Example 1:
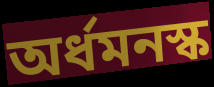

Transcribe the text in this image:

অর্ধমনস্ক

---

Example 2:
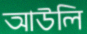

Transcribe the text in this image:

আউলি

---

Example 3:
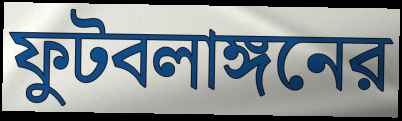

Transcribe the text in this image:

ফুটবলাঙ্গনের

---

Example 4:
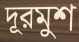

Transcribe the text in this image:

দূরমুশ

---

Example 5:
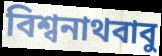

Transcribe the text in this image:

বিশ্বনাথবাবু